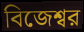
বিজেশ্বর